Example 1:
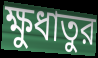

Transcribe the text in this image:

ক্ষুধাতুর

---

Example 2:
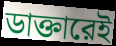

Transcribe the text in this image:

ডাক্তারেই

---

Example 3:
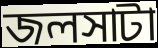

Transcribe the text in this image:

জলসাটা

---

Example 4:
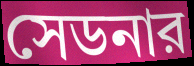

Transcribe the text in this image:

সেডনার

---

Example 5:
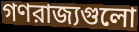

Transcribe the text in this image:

গণরাজ্যগুলো